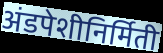
अंडपेशीनिर्मिती